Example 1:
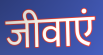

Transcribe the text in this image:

जीवाएं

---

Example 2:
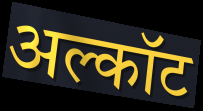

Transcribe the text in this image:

अल्कॉट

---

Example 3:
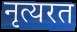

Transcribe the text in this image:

नृत्यरत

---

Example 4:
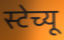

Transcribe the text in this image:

स्टेच्यू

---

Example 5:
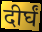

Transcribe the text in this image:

दीर्घं